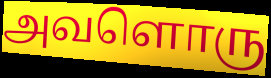
அவளொரு